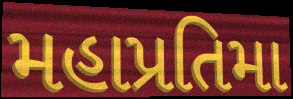
મહાપ્રતિમા